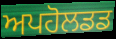
ਅਪਹੋਲਡਡ